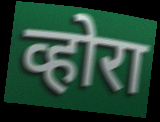
व्होरा